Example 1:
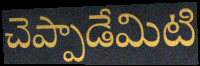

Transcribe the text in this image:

చెప్పాడేమిటి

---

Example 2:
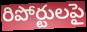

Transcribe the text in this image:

రిపోర్టులపై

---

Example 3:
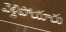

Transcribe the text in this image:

వెళ్లిపోయారు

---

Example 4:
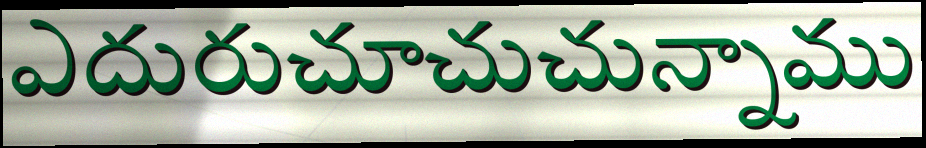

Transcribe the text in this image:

ఎదురుచూచుచున్నాము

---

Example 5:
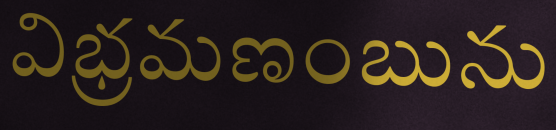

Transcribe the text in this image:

విభ్రమణంబును